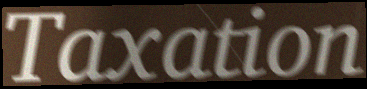
Taxation